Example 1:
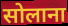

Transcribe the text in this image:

सोलाना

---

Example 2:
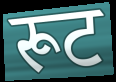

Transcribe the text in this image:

रूट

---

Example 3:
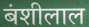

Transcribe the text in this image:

बंशीलाल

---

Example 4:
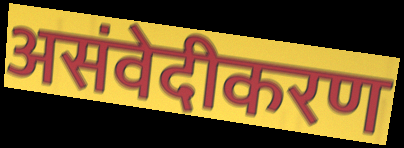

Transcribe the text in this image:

असंवेदीकरण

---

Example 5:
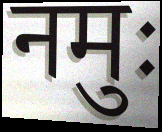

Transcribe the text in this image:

नमुः